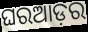
ଘରଆଡ଼ର